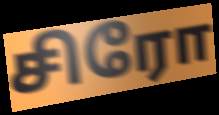
சிரோ